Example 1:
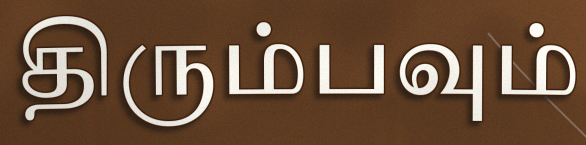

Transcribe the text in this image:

திரும்பவும்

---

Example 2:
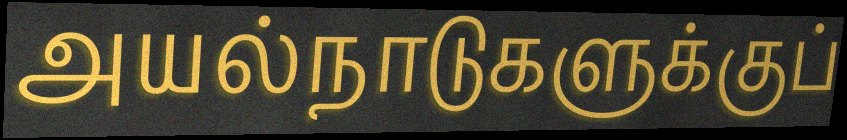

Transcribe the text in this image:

அயல்நாடுகளுக்குப்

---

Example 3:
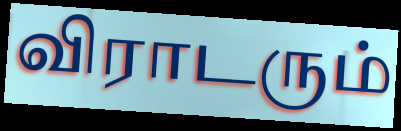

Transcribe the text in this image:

விராடரும்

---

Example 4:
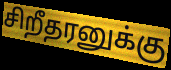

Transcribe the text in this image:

சிறீதரனுக்கு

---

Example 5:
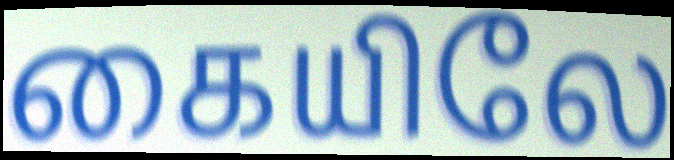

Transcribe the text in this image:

கையிலே